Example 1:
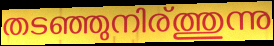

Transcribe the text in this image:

തടഞ്ഞുനിര്ത്തുന്നു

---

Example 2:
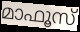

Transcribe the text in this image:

മാഫൂസ്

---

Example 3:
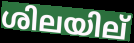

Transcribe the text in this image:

ശിലയില്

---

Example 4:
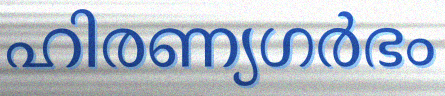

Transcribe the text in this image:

ഹിരണ്യഗർഭം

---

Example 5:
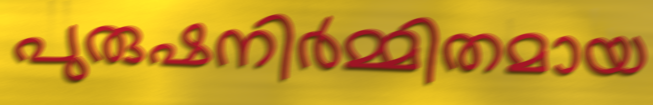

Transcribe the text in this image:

പുരുഷനിർമ്മിതമായ